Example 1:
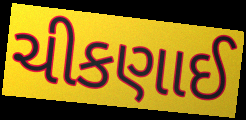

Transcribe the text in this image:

ચીકણાઈ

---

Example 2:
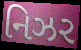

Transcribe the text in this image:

નિઝર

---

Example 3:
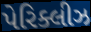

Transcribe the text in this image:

પેરિક્લીઝ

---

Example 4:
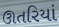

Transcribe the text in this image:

ઊતરિયાં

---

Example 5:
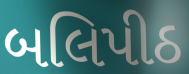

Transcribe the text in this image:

બલિપીઠ